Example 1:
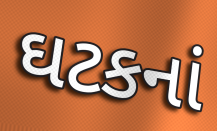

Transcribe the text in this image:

ઘટકનાં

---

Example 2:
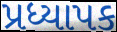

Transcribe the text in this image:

પ્રધ્યાપક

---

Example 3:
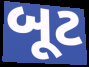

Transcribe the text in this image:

બૂટ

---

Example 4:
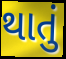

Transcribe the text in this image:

થાતું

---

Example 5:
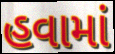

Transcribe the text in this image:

હવામાં